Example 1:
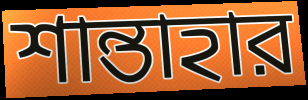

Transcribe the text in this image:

শান্তাহার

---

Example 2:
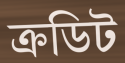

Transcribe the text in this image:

ক্রডিট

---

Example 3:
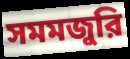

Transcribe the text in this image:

সমমজুরি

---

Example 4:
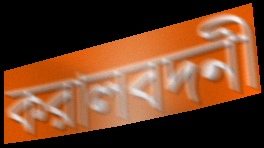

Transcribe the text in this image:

করালবদনী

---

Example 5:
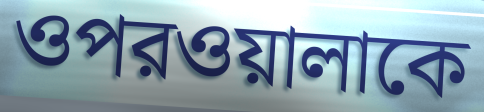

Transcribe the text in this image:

ওপরওয়ালাকে